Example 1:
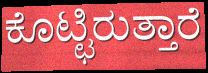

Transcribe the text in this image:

ಕೊಟ್ಟಿರುತ್ತಾರೆ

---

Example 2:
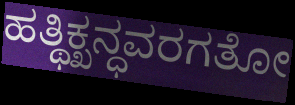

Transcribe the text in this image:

ಹತ್ಥಿಕ್ಖನ್ಧವರಗತೋ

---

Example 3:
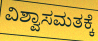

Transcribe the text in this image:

ವಿಶ್ವಾಸಮತಕ್ಕೆ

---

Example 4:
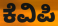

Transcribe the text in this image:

ಕೆವಿಪಿ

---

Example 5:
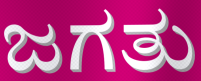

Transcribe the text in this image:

ಜಗತು